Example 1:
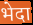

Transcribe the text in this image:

भेदा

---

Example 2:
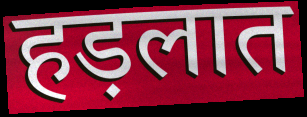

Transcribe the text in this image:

हड़लात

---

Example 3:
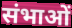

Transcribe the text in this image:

संभाओं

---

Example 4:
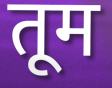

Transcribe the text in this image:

तूम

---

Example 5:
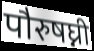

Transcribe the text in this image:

पौरुषघ्नी